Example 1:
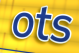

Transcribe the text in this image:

ots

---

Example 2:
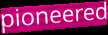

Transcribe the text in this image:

pioneered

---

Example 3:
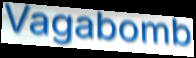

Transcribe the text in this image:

Vagabomb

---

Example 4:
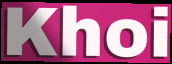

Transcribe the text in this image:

Khoi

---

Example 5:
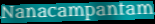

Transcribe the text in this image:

Nanacampantam